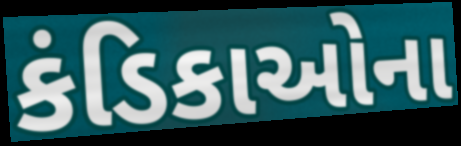
કંડિકાઓના